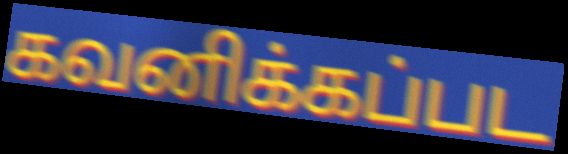
கவனிக்கப்பட